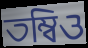
তম্বিও